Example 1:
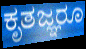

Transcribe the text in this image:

ಕೃತಜ್ಞರೂ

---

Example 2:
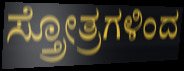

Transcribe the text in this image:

ಸ್ತ್ರೋತ್ರಗಳಿಂದ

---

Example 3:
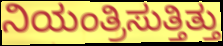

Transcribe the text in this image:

ನಿಯಂತ್ರಿಸುತ್ತಿತ್ತು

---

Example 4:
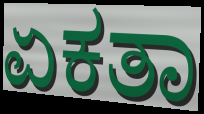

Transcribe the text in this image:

ಏಕತಾ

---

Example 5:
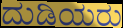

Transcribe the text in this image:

ದುಡಿಯರು